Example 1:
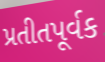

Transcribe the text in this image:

પ્રતીતપૂર્વક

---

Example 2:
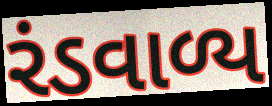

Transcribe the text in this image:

રંડવાળ્ય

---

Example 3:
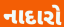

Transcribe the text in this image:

નાદારો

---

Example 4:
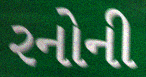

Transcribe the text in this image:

રનોની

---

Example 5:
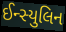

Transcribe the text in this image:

ઈન્સ્યુલિન